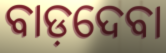
ବାଡ଼ଦେବା